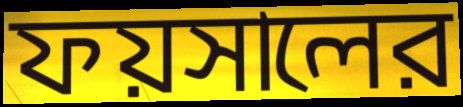
ফয়সালের